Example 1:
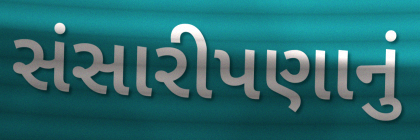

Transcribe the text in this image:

સંસારીપણાનું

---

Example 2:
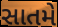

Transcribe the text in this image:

સાતમે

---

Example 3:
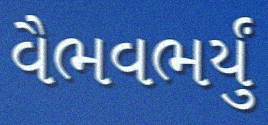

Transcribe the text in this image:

વૈભવભર્યું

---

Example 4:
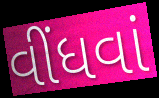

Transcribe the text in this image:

વીંધવાં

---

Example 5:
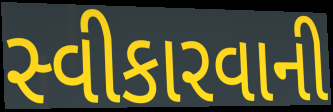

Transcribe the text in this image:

સ્વીકારવાની